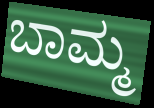
ಬಾಮ್ಮ